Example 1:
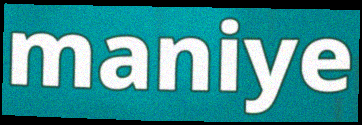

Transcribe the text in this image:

maniye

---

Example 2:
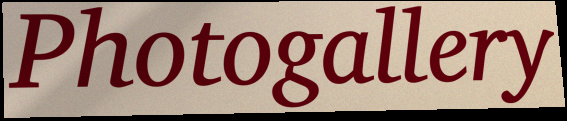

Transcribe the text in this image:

Photogallery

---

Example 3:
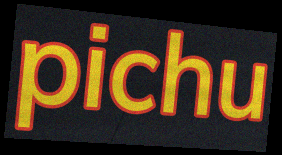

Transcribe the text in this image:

pichu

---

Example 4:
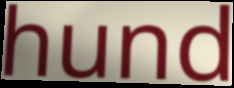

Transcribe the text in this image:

hund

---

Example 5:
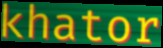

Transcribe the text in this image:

khator